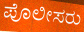
ಪೊಲೀಸರು